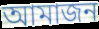
আমাজন